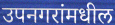
उपनगरांमधील